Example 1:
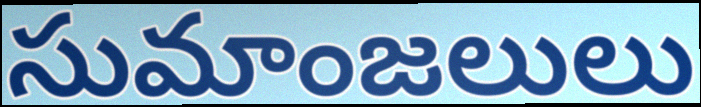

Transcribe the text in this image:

సుమాంజలులు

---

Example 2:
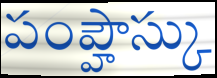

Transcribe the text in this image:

పంప్హౌస్కు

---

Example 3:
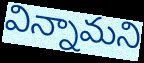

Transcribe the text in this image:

విన్నామని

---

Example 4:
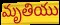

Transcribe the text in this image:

మృతియు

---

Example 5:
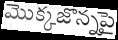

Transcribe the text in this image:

మొక్కజొన్నపై